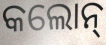
କଲୋନ୍